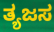
ತ್ಯಜಸ